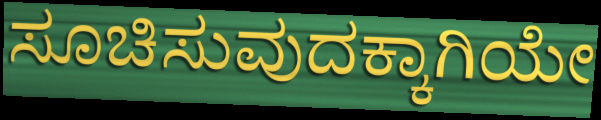
ಸೂಚಿಸುವುದಕ್ಕಾಗಿಯೇ